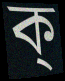
ক্